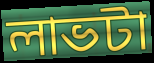
লাভটা